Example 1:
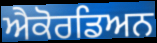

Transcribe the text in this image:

ਐਕੋਰਡਿਅਨ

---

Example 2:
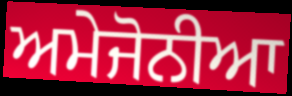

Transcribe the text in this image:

ਅਮੇਜੋਨੀਆ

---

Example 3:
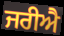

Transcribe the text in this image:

ਜਰੀਐ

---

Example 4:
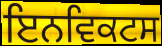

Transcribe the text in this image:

ਇਨਵਿਕਟਸ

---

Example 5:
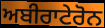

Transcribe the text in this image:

ਅਬੀਰਾਟੇਰੋਨ